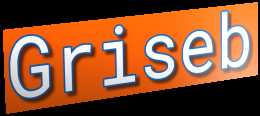
Griseb